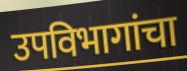
उपविभागांचा